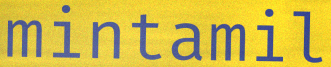
mintamil